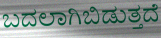
ಬದಲಾಗಿಬಿಡುತ್ತದೆ